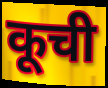
कूची